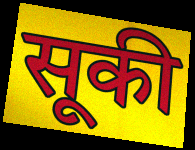
सूकी